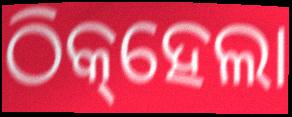
ଠିକ୍‌ହେଲା